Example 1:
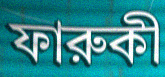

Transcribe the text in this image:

ফারুকী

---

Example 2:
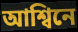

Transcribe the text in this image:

আশ্বিনে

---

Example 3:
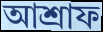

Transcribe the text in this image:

আশ্রাফ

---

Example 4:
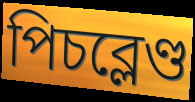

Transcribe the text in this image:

পিচব্লেণ্ড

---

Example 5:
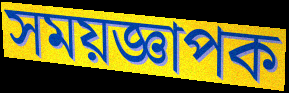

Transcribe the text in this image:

সময়জ্ঞাপক